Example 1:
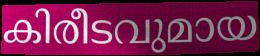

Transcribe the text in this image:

കിരീടവുമായ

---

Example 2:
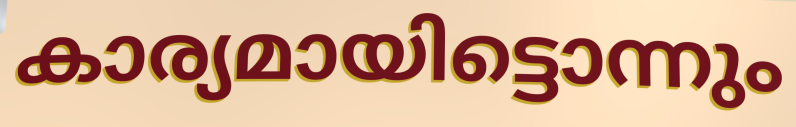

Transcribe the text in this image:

കാര്യമായിട്ടൊന്നും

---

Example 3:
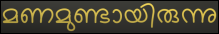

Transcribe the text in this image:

മണമുണ്ടായിരുന്നു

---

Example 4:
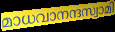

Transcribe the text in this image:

മാധവാനന്ദസ്വാമി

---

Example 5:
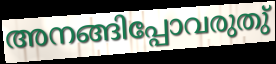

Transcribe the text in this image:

അനങ്ങിപ്പോവരുതു്